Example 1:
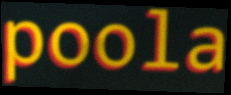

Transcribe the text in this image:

poola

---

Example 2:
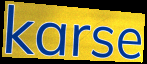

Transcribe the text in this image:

karse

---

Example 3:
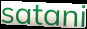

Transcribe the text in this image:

satani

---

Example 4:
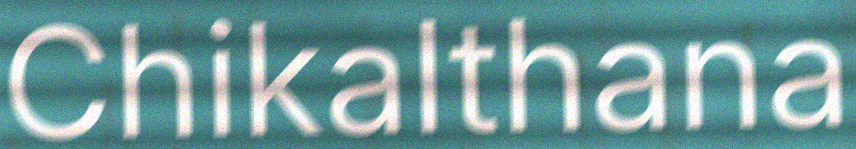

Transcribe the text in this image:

Chikalthana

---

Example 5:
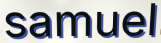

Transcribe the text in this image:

samuel